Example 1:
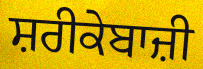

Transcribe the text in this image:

ਸ਼ਰੀਕੇਬਾਜ਼ੀ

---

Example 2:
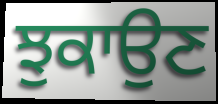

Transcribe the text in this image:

ਝੁਕਾਉਣ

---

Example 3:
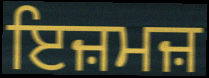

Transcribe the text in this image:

ਇਜ਼ਮਜ਼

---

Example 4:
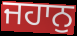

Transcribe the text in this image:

ਜਹਾਨੁ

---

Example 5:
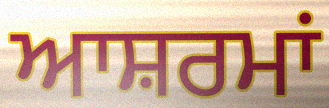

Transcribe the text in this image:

ਆਸ਼ਰਮਾਂ